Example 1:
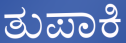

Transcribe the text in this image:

ತುಪಾಕಿ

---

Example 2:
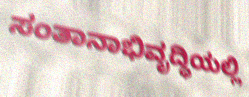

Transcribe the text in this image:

ಸಂತಾನಾಭಿವೃದ್ಧಿಯಲ್ಲಿ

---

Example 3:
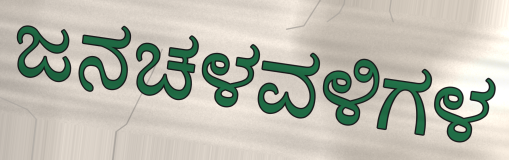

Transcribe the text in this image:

ಜನಚಳವಳಿಗಳ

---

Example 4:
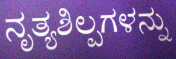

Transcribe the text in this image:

ನೃತ್ಯಶಿಲ್ಪಗಳನ್ನು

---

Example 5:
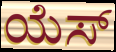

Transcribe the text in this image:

ಯೆಸ್